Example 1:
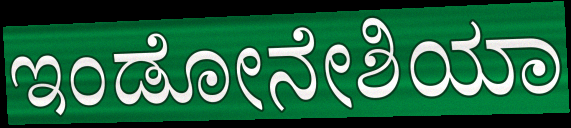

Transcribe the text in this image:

ಇಂಡೋನೇಶಿಯಾ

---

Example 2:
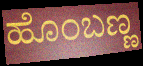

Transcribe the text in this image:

ಹೊಂಬಣ್ಣ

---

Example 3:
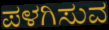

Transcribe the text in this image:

ಪಳಗಿಸುವ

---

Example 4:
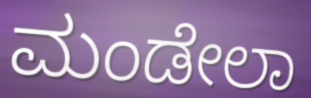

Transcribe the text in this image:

ಮಂಡೇಲಾ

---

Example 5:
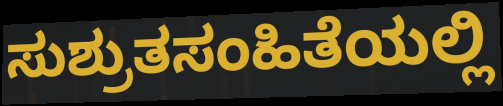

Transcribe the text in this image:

ಸುಶ್ರುತಸಂಹಿತೆಯಲ್ಲಿ